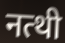
नत्थी